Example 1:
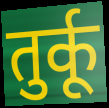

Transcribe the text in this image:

तुर्कू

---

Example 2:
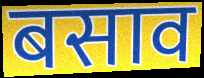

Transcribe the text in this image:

बसाव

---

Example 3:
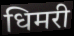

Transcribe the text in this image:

धिमरी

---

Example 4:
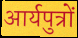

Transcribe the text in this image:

आर्यपुत्रों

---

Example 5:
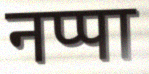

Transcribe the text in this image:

नप्पा